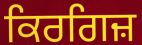
ਕਿਰਗਿਜ਼